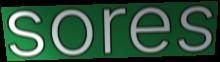
sores